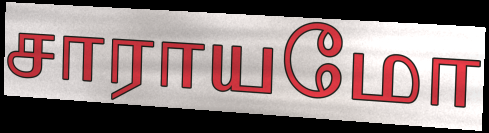
சாராயமோ